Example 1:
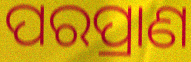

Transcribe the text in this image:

ପରପ୍ରାଣ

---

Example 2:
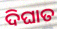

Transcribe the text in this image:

ଦିଘାତ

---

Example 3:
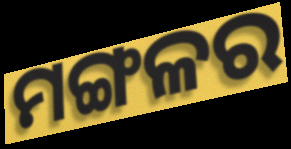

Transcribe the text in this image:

ମଙ୍ଗଳର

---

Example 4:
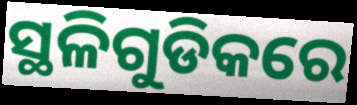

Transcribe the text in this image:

ସ୍ଥଳିଗୁଡିକରେ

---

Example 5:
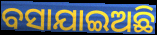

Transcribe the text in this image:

ବସାଯାଇଅଛି